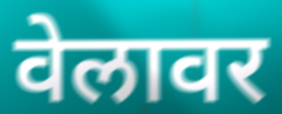
वेलावर